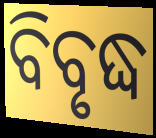
ବିବୃଦ୍ଧ